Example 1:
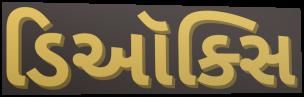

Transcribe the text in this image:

ડિઑક્સિ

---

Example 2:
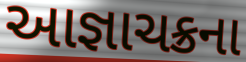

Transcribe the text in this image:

આજ્ઞાચક્રના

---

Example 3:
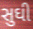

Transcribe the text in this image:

સુઘી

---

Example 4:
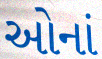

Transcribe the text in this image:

ઓનાં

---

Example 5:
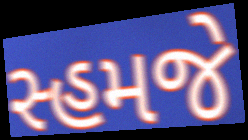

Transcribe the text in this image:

સ્હમજે